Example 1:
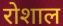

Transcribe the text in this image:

रोशाल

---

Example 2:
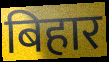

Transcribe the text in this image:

बिहार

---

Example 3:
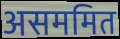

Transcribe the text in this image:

असममित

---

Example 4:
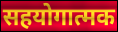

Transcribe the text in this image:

सहयोगात्मक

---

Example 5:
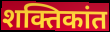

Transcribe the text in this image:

शक्तिकांत